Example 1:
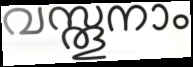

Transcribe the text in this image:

വസ്തൂനാം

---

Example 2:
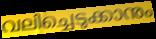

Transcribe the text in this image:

വലിച്ചെടുക്കാനും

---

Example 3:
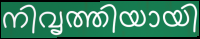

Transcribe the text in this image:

നിവൃത്തിയായി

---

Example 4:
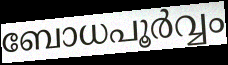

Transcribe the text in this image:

ബോധപൂർവ്വം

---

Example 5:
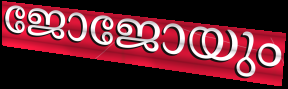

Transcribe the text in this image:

ജോജോയും